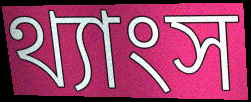
থ্যাংস